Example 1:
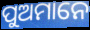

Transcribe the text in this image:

ପୁଅମାନେ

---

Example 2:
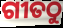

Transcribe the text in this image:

ଗୀତଠୁ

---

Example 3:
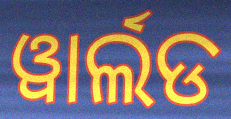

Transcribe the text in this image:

ୱାର୍ଲଡ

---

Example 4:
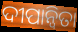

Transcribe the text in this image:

ଦୀପାନ୍ୱିତା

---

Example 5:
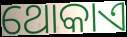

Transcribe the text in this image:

ଥୋକାଏ